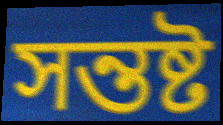
সন্তষ্ট